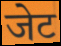
जेट